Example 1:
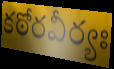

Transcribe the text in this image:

కఠోరవీర్యః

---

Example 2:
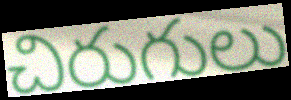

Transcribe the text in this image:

చిరుగులు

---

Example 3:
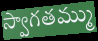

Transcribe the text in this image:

స్వాగతమ్ము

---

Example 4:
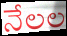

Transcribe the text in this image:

నేలల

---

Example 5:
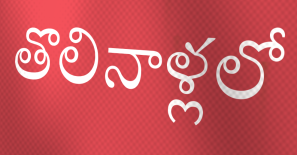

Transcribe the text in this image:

తొలినాళ్లలో